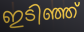
ഇടിഞ്ഞ്